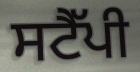
ਸਟੈੱਪੀ